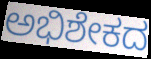
ಅಭಿಶೇಕದ